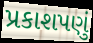
પ્રકાશપણું